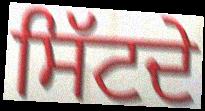
ਸਿੱਟਦੇ